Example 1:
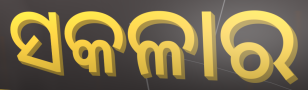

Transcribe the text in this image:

ସକଳାର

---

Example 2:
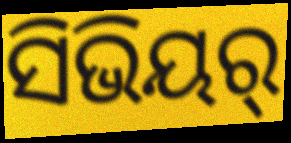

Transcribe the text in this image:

ସିଭିୟର୍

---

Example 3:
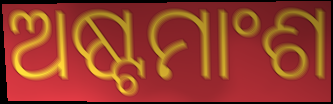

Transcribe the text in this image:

ଅଷ୍ଟମାଂଶ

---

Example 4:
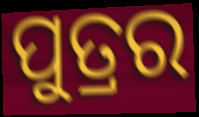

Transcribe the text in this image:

ପୁତ୍ରର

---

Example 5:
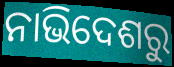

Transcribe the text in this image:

ନାଭିଦେଶରୁ